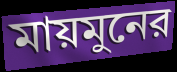
মায়মুনের